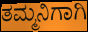
ತಮ್ಮನಿಗಾಗಿ